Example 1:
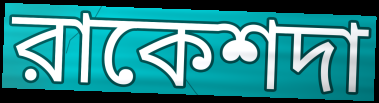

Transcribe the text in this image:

রাকেশদা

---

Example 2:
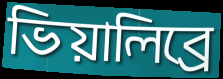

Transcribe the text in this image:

ভিয়ালিব্রে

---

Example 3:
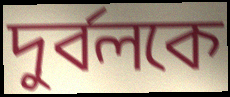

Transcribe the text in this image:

দুর্বলকে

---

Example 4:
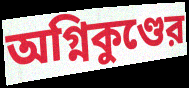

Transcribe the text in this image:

অগ্নিকুণ্ডের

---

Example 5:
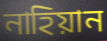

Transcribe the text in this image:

নাহিয়ান